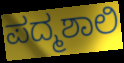
ಪದ್ಮಶಾಲಿ